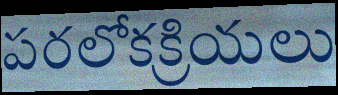
పరలోకక్రియలు